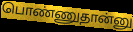
பொண்ணுதான்னு